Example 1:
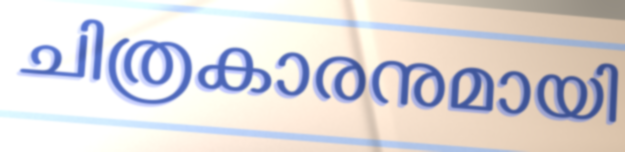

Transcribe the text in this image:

ചിത്രകാരനുമായി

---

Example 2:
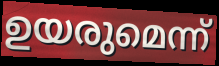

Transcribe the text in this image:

ഉയരുമെന്ന്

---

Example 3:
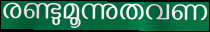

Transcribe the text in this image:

രണ്ടുമൂന്നുതവണ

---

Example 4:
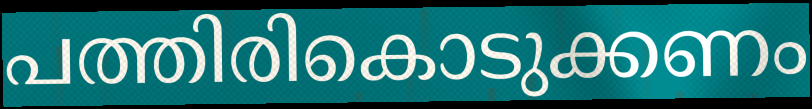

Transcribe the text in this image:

പത്തിരികൊടുക്കണം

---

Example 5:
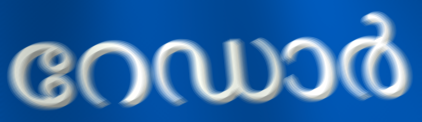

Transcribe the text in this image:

റേഡാർ